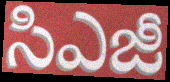
సిఎజీ